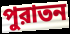
পুরাতন